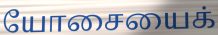
யோசையைக்